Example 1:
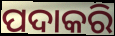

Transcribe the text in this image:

ପଦାକରି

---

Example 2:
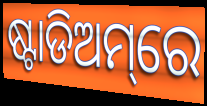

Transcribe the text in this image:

ଷ୍ଟାଡିଅମ୍‌ରେ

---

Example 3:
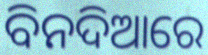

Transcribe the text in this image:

ବିନଦିଆରେ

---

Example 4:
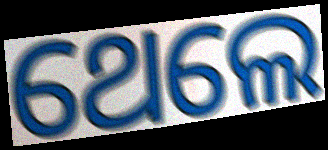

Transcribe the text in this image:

ଥେଲେ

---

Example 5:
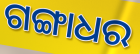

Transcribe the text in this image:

ଗଙ୍ଗାଧର